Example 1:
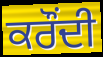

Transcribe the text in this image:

ਕਰੌਂਦੀ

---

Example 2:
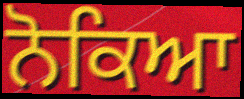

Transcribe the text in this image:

ਨੋਕਿਆ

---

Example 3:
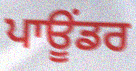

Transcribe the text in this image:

ਪਾਊਂਡਰ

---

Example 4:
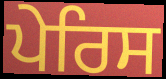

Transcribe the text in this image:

ਪੇਰਿਸ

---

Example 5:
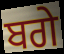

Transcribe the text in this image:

ਬਗੇ